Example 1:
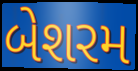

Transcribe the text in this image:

બેશરમ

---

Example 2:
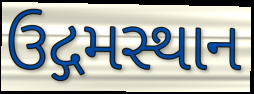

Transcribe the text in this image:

ઉદ્ગમસ્થાન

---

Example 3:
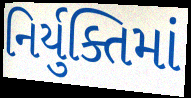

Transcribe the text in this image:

નિર્યુક્તિમાં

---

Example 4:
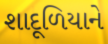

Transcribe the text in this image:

શાદૂળિયાને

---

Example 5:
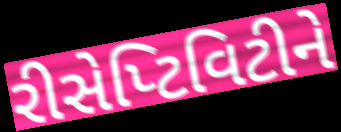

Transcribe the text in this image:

રીસેપ્ટિવિટીને